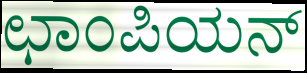
ಛಾಂಪಿಯನ್